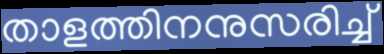
താളത്തിനനുസരിച്ച്